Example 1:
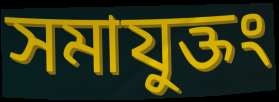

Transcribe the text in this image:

সমাযুক্তং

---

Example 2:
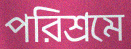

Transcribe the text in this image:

পরিশ্রমে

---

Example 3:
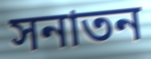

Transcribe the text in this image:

সনাতন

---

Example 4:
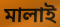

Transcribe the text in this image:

মালাই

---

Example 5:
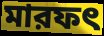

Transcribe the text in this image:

মারফৎ